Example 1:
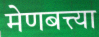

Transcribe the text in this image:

मेणबत्त्या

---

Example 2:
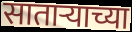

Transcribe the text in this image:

साताऱ्याच्या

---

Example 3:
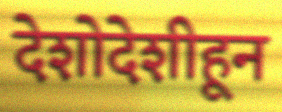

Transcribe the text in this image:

देशोदेशीहून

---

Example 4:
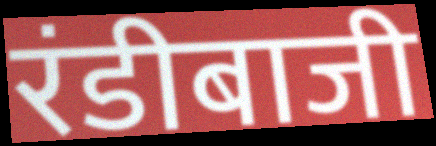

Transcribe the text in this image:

रंडीबाजी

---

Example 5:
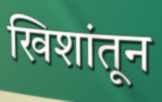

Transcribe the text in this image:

खिशांतून